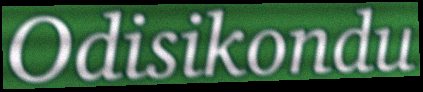
Odisikondu